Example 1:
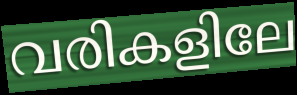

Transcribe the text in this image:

വരികളിലേ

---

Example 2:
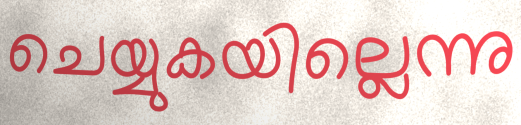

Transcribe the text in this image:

ചെയ്യുകയില്ലെന്നു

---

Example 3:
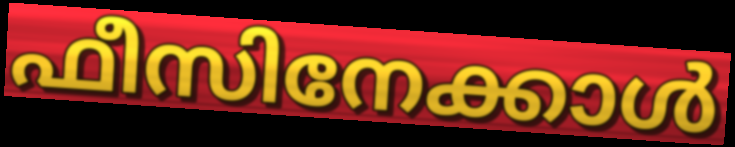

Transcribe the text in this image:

ഫീസിനേക്കാൾ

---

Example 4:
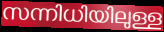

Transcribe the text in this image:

സന്നിധിയിലുള്ള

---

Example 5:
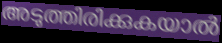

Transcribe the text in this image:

അടുത്തിരിക്കുകയാൽ